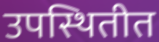
उपस्थितीत